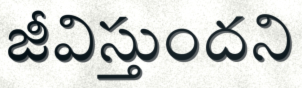
జీవిస్తుందని